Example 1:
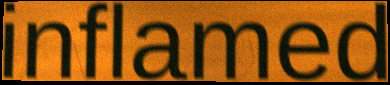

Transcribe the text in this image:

inflamed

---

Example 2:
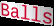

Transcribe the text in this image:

Balls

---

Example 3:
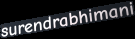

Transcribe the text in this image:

surendrabhimani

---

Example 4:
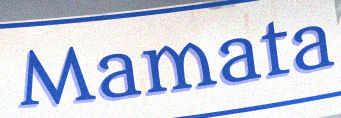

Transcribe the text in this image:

Mamata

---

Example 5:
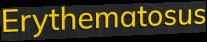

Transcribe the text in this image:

Erythematosus